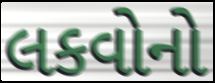
લકવોનો